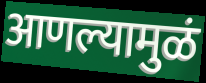
आणल्यामुळं